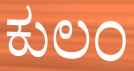
ಕುಲಂ